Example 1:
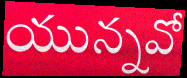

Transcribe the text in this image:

యున్నవో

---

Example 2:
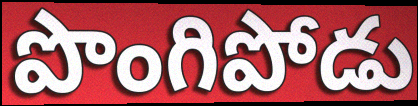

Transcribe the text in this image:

పొంగిపోడు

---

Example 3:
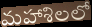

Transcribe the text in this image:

మహాశిలలో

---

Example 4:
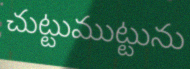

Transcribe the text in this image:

చుట్టుముట్టును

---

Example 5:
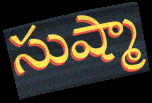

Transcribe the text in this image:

సుష్మా